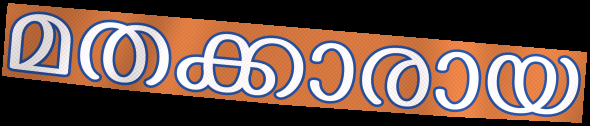
മതക്കാരായ